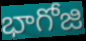
భాగోజి